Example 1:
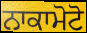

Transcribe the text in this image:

ਨਾਕਾਮੋਟੋ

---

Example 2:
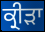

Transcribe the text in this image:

ਕ੍ਰੀੜਾ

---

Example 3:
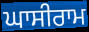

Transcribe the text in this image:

ਘਾਸੀਰਾਮ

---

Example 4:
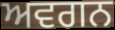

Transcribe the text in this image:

ਅਵਗਨ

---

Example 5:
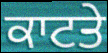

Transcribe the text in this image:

ਕਾਟਤੇ